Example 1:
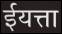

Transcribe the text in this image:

ईयत्ता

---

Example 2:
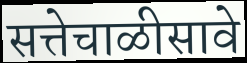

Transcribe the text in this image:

सत्तेचाळीसावे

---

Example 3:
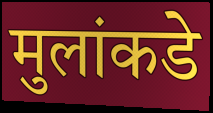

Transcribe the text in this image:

मुलांकडे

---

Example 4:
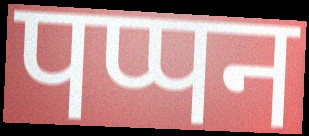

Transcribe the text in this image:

पप्पन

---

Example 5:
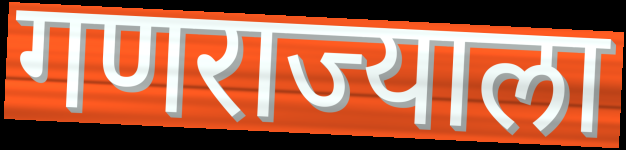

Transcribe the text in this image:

गणराज्याला